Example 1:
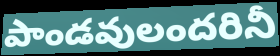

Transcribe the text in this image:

పాండవులందరినీ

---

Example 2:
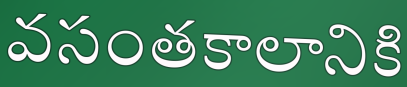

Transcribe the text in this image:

వసంతకాలానికి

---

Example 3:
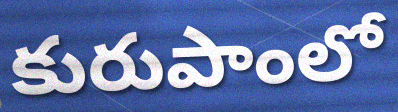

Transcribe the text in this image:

కురుపాంలో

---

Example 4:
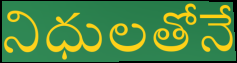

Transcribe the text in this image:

నిధులతోనే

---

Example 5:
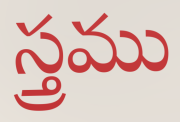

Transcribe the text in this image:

స్త్రము